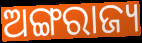
ଅଙ୍ଗରାଜ୍ୟ